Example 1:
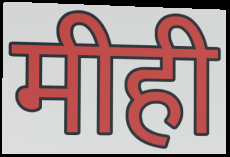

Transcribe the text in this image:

मीही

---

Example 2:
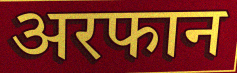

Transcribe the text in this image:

अरफान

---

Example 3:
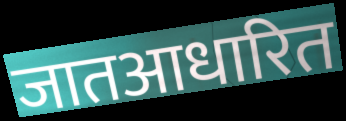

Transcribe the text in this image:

जातआधारित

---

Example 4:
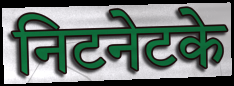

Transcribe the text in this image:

निटनेटके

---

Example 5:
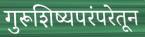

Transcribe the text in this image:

गुरूशिष्यपरंपरेतून